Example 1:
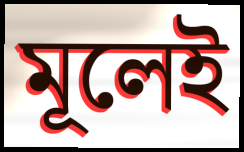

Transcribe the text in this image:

মূলেই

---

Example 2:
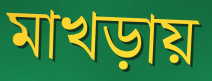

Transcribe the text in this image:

মাখড়ায়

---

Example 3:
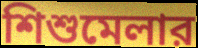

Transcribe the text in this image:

শিশুমেলার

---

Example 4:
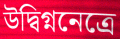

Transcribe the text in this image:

উদ্বিগ্ননেত্রে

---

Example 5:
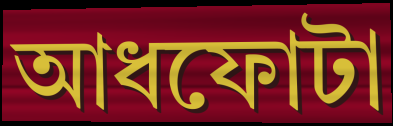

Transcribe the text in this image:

আধফোটা